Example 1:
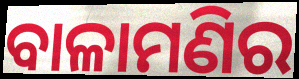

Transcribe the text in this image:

ବାଳାମଣିର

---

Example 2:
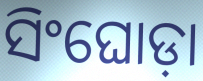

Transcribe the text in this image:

ସିଂଘୋଡ଼ା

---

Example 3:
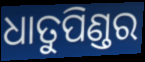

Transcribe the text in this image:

ଧାତୁପିଣ୍ଡର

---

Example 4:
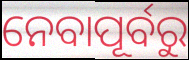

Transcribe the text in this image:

ନେବାପୂର୍ବରୁ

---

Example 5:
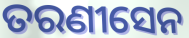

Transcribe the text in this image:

ତରଣୀସେନ